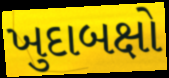
ખુદાબક્ષો